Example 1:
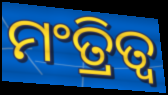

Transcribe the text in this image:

ମଂତ୍ରିତ୍ୱ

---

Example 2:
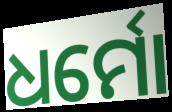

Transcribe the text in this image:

ଧର୍ମୋ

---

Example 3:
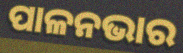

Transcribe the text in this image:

ପାଳନଭାର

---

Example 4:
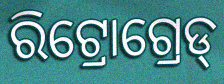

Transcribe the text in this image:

ରିଟ୍ରୋଗ୍ରେଡ୍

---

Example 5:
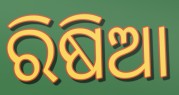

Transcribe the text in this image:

ରିଷିଆ